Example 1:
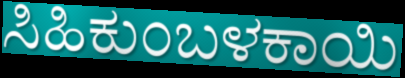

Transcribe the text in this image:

ಸಿಹಿಕುಂಬಳಕಾಯಿ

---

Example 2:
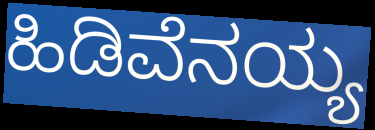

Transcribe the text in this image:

ಹಿಡಿವೆನಯ್ಯ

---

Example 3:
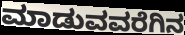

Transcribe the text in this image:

ಮಾಡುವವರೆಗಿನ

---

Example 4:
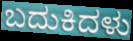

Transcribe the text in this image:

ಬದುಕಿದಳು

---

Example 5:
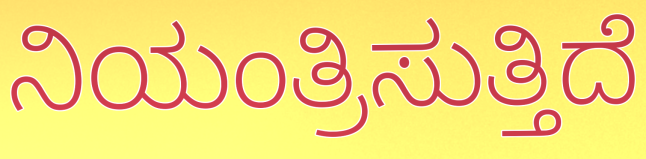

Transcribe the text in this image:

ನಿಯಂತ್ರಿಸುತ್ತಿದೆ